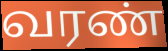
வரண்